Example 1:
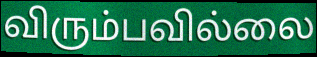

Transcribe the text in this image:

விரும்பவில்லை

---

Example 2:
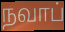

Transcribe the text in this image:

நவாப்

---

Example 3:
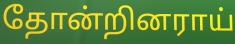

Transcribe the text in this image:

தோன்றினராய்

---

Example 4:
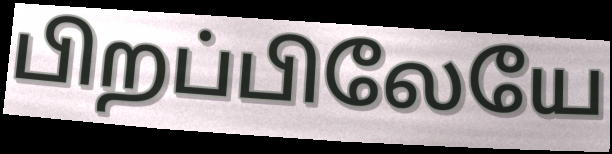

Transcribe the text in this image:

பிறப்பிலேயே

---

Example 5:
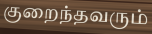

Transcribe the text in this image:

குறைந்தவரும்